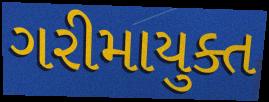
ગરીમાયુક્ત